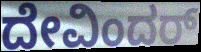
ದೇವಿಂದರ್